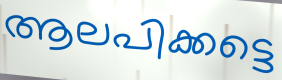
ആലപിക്കട്ടെ